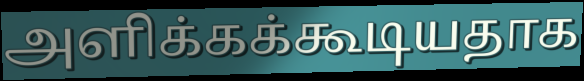
அளிக்கக்கூடியதாக